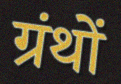
ग्रंथों